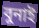
বুনাই